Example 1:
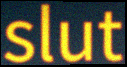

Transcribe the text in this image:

slut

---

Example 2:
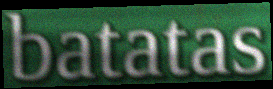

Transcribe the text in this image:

batatas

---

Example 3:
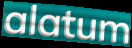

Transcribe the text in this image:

alatum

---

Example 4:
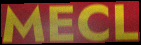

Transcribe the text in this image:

MECL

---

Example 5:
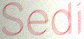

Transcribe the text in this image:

Sedi